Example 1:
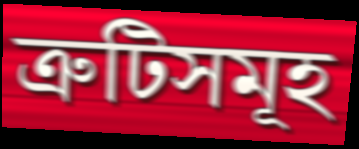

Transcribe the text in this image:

ত্ৰুটিসমূহ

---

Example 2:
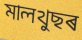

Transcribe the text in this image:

মালথুছৰ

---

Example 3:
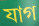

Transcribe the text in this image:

যাগ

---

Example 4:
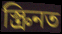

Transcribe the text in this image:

স্ক্ৰিনত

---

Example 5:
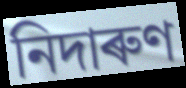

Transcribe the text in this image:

নিদাৰুণ